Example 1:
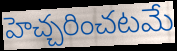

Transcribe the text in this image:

హెచ్చరించటమే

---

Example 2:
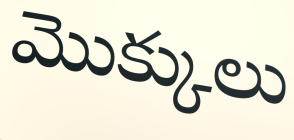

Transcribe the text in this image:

మొక్కులు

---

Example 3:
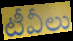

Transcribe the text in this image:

టీవీలు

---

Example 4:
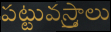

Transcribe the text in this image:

పట్టువస్ర్తాలు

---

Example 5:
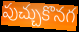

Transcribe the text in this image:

పుచ్చుకొనగ